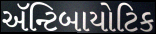
ઍન્ટિબાયોટિક